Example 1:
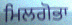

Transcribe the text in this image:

ਮਿਲਗੋਭਾ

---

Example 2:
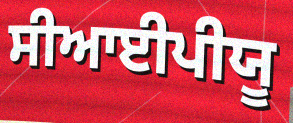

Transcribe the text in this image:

ਸੀਆਈਪੀਯੂ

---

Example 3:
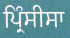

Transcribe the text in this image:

ਪ੍ਰਿੰਸੀਸਾ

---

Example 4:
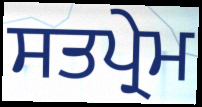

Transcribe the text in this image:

ਸਤਪ੍ਰੇਮ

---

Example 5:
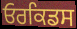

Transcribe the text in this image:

ਓਰਕਿਡਸ